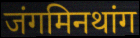
जंगमिनथांग